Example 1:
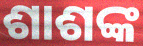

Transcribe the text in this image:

ଶାଶଙ୍କ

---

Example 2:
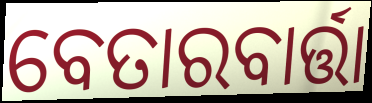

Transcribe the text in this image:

ବେତାରବାର୍ତ୍ତା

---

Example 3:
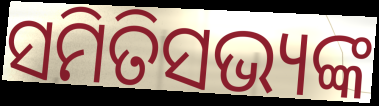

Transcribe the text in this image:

ସମିତିସଭ୍ୟଙ୍କ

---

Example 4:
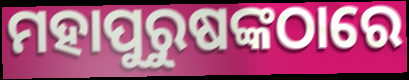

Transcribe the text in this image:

ମହାପୁରୁଷଙ୍କଠାରେ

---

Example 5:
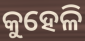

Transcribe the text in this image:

କୁହେଳି